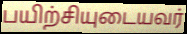
பயிற்சியுடையவர்